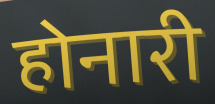
होनारी